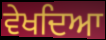
ਵੇਖਦਿਆ